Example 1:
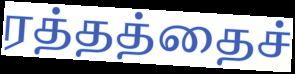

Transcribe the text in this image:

ரத்தத்தைச்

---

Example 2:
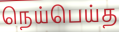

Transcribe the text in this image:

நெய்பெய்த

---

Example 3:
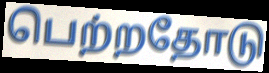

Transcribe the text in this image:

பெற்றதோடு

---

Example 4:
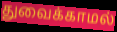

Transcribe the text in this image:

துவைக்காமல்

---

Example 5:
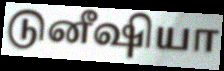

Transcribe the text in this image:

டுனீஷியா